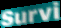
Survi